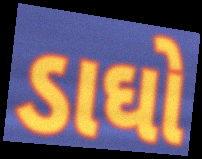
ડાઘો